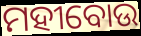
ମହୀବୋଉ